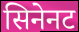
सिनेनट